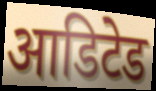
आडिटेड